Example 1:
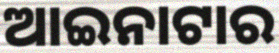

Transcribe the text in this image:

ଆଇନାଟାର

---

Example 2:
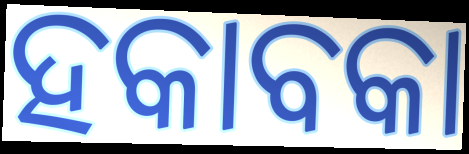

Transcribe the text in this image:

ହକାବକା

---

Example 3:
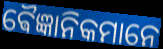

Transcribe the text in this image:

ଵୈଜ୍ଞାନିକମାନେ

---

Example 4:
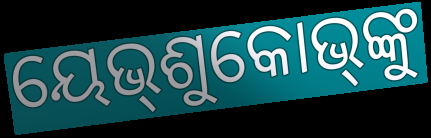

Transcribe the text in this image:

ୟେଭ୍‌ଶୁକୋଭ୍‌ଙ୍କୁ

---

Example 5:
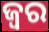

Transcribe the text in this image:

ଜ୍ବର